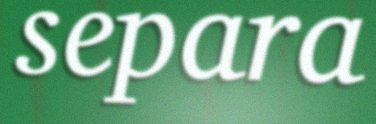
separa